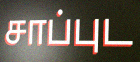
சாப்புட